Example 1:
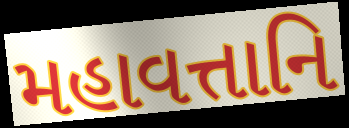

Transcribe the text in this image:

મહાવત્તાનિ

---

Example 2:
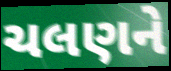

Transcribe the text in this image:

ચલણને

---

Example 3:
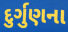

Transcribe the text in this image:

દુર્ગુણના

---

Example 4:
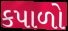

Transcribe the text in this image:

કપાળો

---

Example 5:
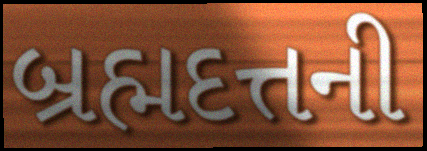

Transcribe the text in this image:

બ્રહ્મદત્તની